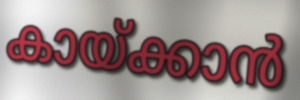
കായ്ക്കാൻ